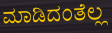
ಮಾಡಿದಂತೆಲ್ಲ